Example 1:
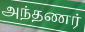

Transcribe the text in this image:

அந்தணர்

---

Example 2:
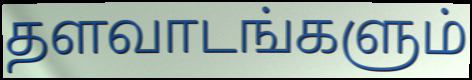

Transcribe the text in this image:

தளவாடங்களும்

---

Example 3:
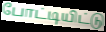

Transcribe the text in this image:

போட்டியிட்டு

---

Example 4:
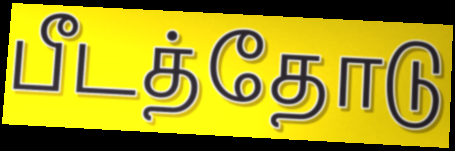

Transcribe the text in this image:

பீடத்தோடு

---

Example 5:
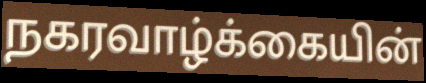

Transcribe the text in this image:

நகரவாழ்க்கையின்